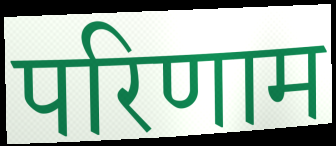
परिणाम